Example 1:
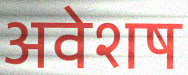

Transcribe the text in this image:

अवेशष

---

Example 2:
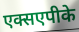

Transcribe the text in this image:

एक्सएपीके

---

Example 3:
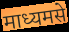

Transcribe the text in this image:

माध्यमसे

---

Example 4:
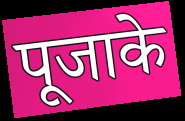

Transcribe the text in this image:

पूजाके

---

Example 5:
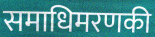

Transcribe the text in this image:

समाधिमरणकी